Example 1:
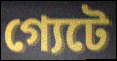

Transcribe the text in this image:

গ্যেটে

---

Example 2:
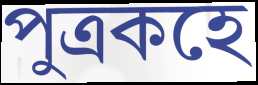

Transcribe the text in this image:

পুত্ৰকহে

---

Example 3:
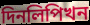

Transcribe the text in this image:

দিনলিপিখন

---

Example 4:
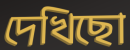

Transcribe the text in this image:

দেখিছো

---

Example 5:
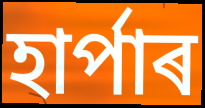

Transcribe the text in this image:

হাৰ্পাৰ